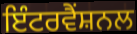
ਇੰਟਰਵੈਂਸ਼ਨਲ